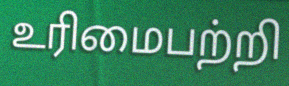
உரிமைபற்றி